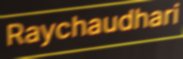
Raychaudhari